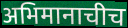
अभिमानाचीच